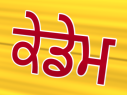
ਕੇਡੇਮ